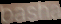
basha